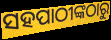
ସହପାଠୀଙ୍କଠାରୁ